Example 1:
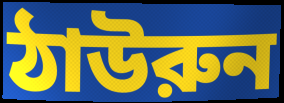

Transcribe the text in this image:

ঠাউরুন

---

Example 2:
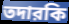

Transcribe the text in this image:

তদারকি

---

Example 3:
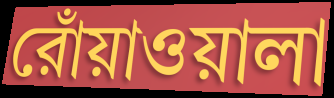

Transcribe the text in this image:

রোঁয়াওয়ালা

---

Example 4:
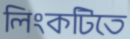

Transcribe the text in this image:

লিংকটিতে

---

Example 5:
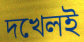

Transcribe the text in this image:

দখেলই